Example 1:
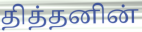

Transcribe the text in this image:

தித்தனின்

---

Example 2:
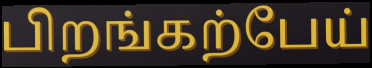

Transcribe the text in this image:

பிறங்கற்பேய்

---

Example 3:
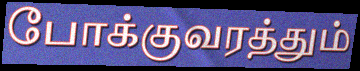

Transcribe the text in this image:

போக்குவரத்தும்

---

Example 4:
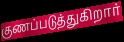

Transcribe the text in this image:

குணப்படுத்துகிறார்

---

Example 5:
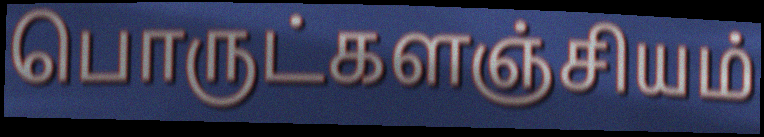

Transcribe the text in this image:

பொருட்களஞ்சியம்